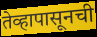
तेव्हापासूनची